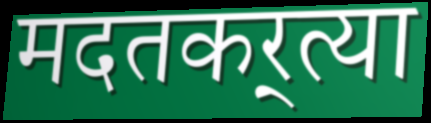
मदतकर्त्या